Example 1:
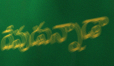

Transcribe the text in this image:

దేవుడున్నాడా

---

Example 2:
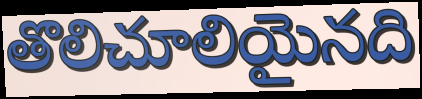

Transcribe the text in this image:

తొలిచూలియైనది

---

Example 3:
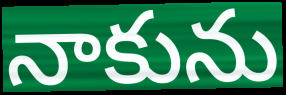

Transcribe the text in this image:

నాకును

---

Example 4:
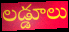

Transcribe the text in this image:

లడ్డూలు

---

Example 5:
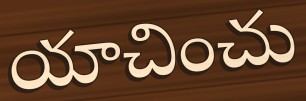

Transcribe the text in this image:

యాచించు